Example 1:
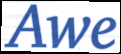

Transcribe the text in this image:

Awe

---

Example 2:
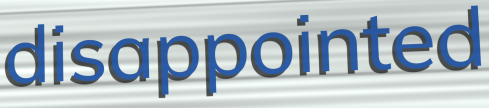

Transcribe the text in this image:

disappointed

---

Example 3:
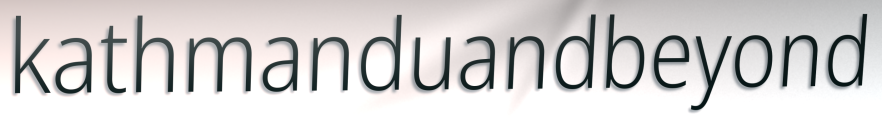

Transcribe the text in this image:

kathmanduandbeyond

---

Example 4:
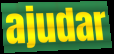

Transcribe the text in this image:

ajudar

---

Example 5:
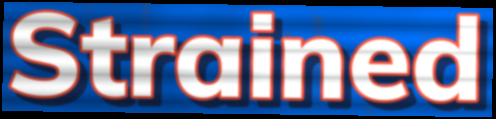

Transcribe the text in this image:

Strained